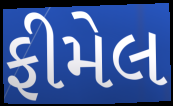
ફીમેલ